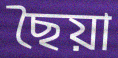
ছৈয়া